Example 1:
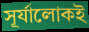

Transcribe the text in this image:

সূর্যালোকই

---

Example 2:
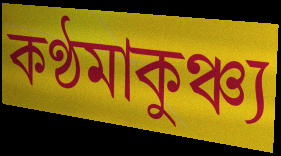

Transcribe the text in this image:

কণ্ঠমাকুঞ্চ্য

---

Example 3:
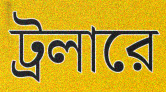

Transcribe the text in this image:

ট্রলারে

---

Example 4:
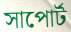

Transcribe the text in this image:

সাপোর্ট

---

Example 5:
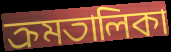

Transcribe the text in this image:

ক্রমতালিকা